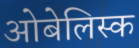
ओबेलिस्क